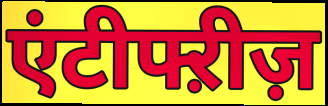
एंटीफ्ऱीज़